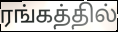
ரங்கத்தில்